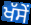
ਖੱਸੇਂ